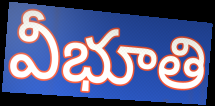
వీభూతి